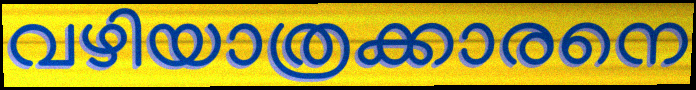
വഴിയാത്രക്കാരനെ